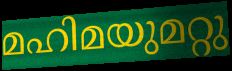
മഹിമയുമറ്റു